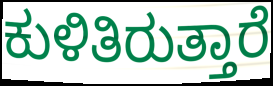
ಕುಳಿತಿರುತ್ತಾರೆ